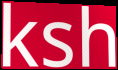
ksh